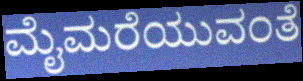
ಮೈಮರೆಯುವಂತೆ